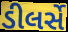
ડીલર્સે